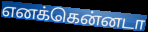
எனக்கென்னடா